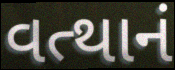
વત્થાનં